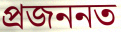
প্ৰজননত